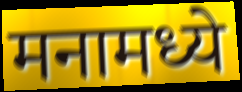
मनामध्ये